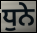
ਧੁਨੇ